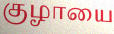
குழாயை